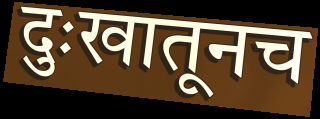
दुःखातूनच